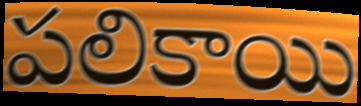
పలికాయి